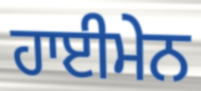
ਹਾਈਮੇਨ